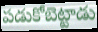
పడుకోబెట్టాడు